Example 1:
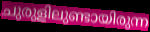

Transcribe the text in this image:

ചുരുളിലുണ്ടായിരുന്ന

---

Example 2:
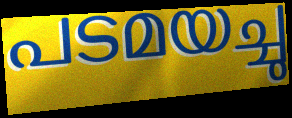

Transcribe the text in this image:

പടമയച്ചു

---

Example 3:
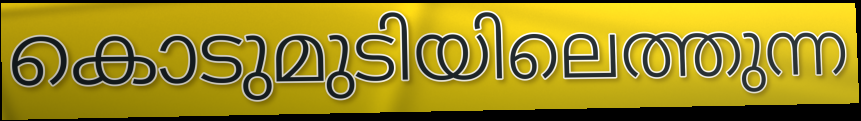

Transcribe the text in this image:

കൊടുമുടിയിലെത്തുന്ന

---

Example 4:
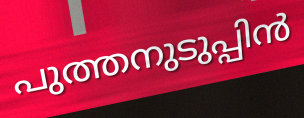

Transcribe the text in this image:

പുത്തനുടുപ്പിൻ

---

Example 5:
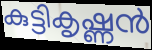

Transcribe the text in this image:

കുട്ടികൃഷ്ണൻ